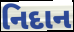
નિદાન